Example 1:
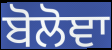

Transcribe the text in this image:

ਬੋਲੋਞਾ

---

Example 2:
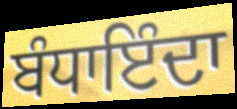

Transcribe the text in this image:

ਬੰਧਾਇੰਦਾ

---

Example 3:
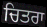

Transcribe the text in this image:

ਚਿਤਰਾ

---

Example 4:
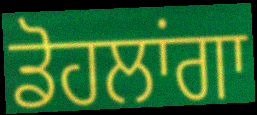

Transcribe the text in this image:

ਡੋਹਲਾਂਗਾ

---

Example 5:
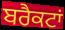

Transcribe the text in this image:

ਬਰੈਕਟਾਂ